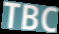
TBC